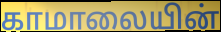
காமாலையின்